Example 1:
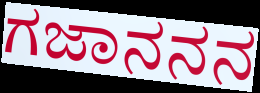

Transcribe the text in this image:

ಗಜಾನನನ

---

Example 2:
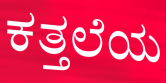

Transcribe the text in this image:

ಕತ್ತಲೆಯ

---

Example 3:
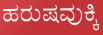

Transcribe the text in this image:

ಹರುಷವುಕ್ಕಿ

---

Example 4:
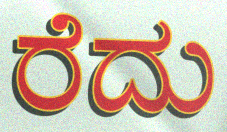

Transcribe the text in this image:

ರೆದು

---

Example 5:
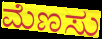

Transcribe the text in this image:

ಮೆಣಸು